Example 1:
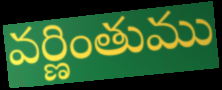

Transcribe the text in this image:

వర్ణింతుము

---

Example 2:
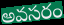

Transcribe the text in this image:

అవసరం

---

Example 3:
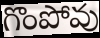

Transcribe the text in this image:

గొంపోవు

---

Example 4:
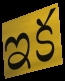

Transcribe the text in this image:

ఇక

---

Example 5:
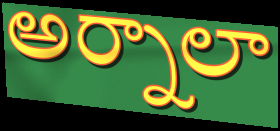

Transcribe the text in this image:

అర్నాలా